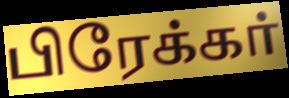
பிரேக்கர்